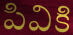
పివికి